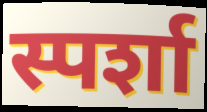
स्पर्शा